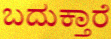
ಬದುಕ್ತಾರೆ